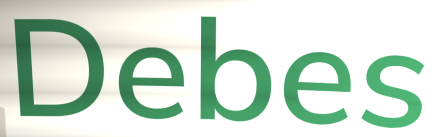
Debes